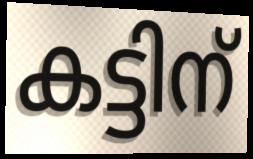
കട്ടിന്